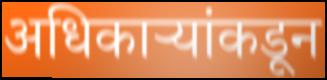
अधिकाऱ्यांकडून